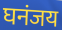
घनंजय